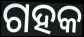
ଗହକ